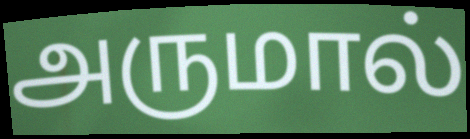
அருமால்